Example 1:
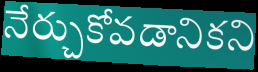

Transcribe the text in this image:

నేర్చుకోవడానికని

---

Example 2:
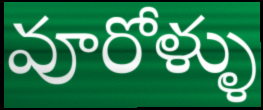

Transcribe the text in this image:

వూరోళ్ళు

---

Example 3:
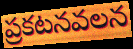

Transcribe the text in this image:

ప్రకటనవలన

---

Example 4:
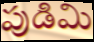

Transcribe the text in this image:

పుడిమి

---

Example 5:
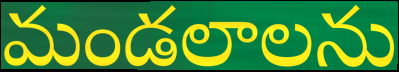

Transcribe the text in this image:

మండలాలను